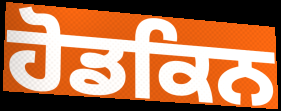
ਹੋਡਕਿਨ